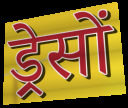
ड्रेसों